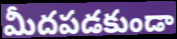
మీదపడకుండా